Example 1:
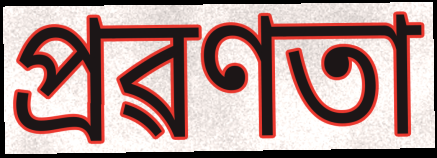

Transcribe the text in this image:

প্ৰৱণতা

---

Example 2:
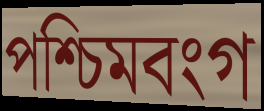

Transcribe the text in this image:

পশ্চিমবংগ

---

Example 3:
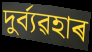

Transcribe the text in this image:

দুৰ্ব্যৱহাৰ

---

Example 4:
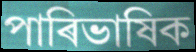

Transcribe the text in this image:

পাৰিভাষিক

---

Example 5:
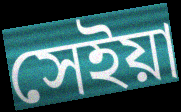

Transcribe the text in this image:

সেইয়া